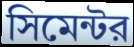
সিমেন্টর